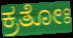
ಕ್ರತೋಃ